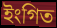
ইংগিত